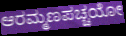
ಆರಮ್ಮಣಪಚ್ಚಯೋ